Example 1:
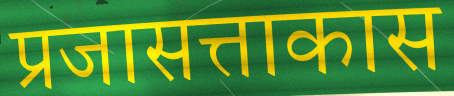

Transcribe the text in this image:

प्रजासत्ताकास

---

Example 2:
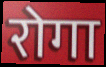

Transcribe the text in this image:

रोगा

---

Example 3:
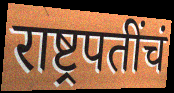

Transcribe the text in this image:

राष्ट्रपतींचं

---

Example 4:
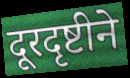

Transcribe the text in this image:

दूरदृष्टीने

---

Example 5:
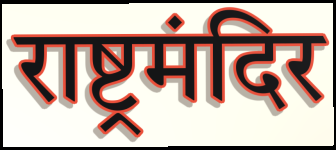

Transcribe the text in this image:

राष्ट्रमंदिर